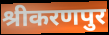
श्रीकरणपुर